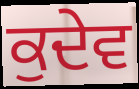
ਕੁਦੇਵ